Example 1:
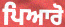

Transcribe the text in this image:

ਪਿਆਰੋ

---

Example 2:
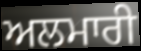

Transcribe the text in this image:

ਅਲਮਾਰੀ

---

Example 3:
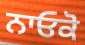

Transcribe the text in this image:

ਨਾਓਕੋ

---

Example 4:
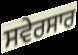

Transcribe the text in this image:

ਸਵੇਰਸਾਰ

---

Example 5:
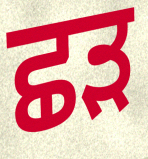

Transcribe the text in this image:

ਛੜ